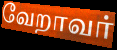
வேறாவர்